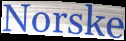
Norske